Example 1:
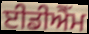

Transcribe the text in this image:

ਈਡੀਐੱਮ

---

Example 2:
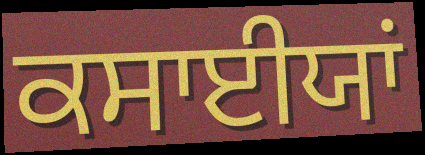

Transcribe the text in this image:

ਕਸਾਈਯਾਂ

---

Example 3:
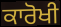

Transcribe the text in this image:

ਕਾਰੋਖੀ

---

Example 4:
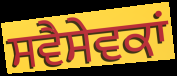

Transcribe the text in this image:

ਸਵੈਸੇਵਕਾਂ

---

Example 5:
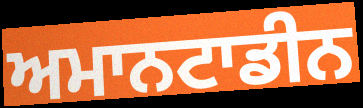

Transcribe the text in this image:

ਅਮਾਨਟਾਡੀਨ